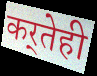
कर्तेही